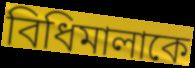
বিধিমালাকে